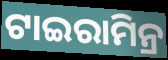
ଟାଇରାମିନ୍ର